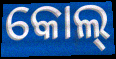
କୋଲ୍